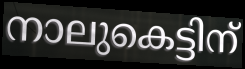
നാലുകെട്ടിന്